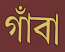
গাঁবা